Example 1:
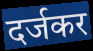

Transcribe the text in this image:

दर्जकर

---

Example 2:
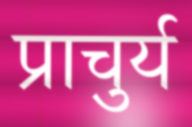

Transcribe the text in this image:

प्राचुर्य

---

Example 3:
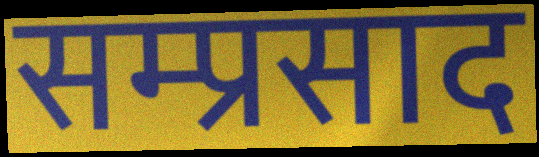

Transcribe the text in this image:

सम्प्रसाद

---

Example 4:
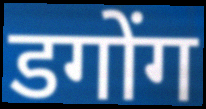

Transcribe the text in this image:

डगोंग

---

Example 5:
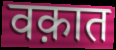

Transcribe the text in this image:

वक़ात